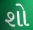
શો